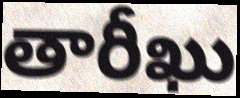
తారీఖు